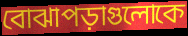
বোঝাপড়াগুলোকে